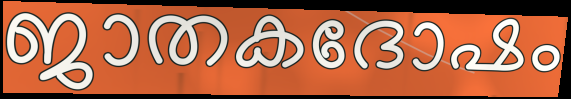
ജാതകദോഷം